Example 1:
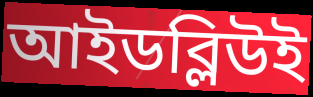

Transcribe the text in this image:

আইডব্লিউই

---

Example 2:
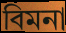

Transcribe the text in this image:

বিমনা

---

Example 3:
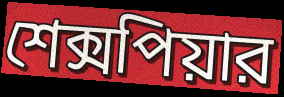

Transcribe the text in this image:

শেক্সপিয়ার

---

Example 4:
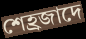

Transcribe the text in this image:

শেহ্রজাদে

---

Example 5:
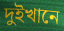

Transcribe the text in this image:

দুইখানে